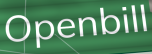
Openbill